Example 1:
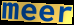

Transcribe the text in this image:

meer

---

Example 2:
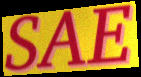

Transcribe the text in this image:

SAE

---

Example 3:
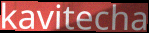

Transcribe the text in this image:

kavitecha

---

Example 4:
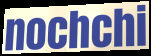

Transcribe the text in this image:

nochchi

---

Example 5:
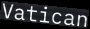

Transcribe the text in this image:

Vatican